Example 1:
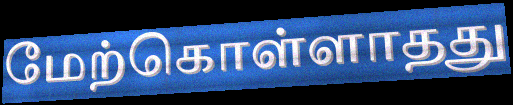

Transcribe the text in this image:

மேற்கொள்ளாதது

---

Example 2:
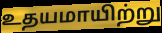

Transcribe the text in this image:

உதயமாயிற்று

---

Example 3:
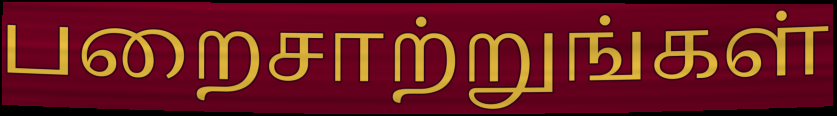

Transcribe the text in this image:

பறைசாற்றுங்கள்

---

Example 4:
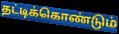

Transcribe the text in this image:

தட்டிக்கொண்டும்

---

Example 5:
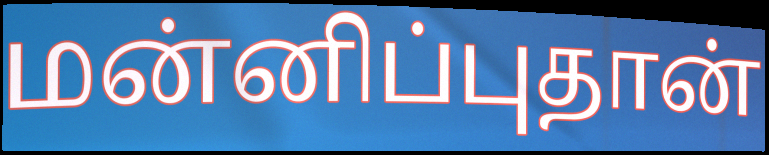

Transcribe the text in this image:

மன்னிப்புதான்